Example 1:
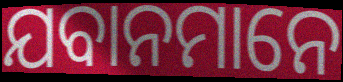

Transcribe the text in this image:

ଯବାନମାନେ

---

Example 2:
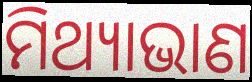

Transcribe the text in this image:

ମିଥ୍ୟାଭାଣ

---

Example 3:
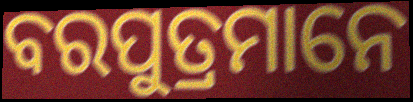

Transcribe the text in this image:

ବରପୁତ୍ରମାନେ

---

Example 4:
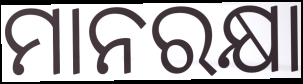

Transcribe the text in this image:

ମାନରକ୍ଷା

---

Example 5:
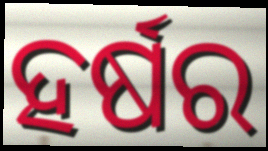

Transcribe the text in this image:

ହର୍ଷର